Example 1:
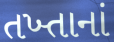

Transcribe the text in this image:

તખ્તાનાં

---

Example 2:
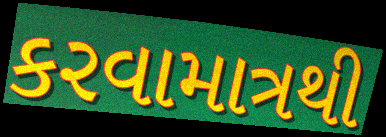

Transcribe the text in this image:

કરવામાત્રથી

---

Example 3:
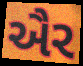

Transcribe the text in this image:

ઐર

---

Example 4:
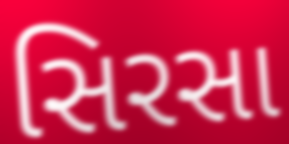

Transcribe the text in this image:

સિરસા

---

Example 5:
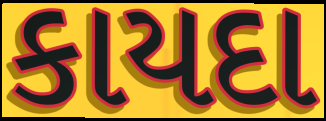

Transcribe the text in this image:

કાયદા